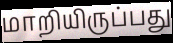
மாறியிருப்பது